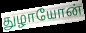
துழாயோன்